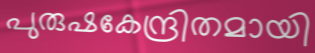
പുരുഷകേന്ദ്രിതമായി